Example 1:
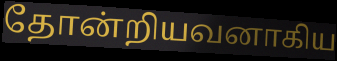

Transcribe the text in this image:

தோன்றியவனாகிய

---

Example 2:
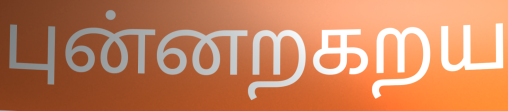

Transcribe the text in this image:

புன்னறகறய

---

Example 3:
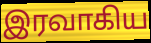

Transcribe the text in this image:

இரவாகிய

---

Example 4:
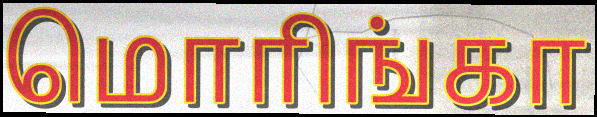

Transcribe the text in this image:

மொரிங்கா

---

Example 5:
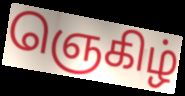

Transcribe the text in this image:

ஞெகிழ்